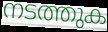
നടത്തുക